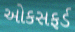
ઓકસફર્ડ